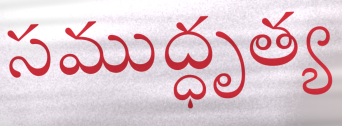
సముద్ధృత్య